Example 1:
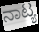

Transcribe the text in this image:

ನಾಟ್ಯ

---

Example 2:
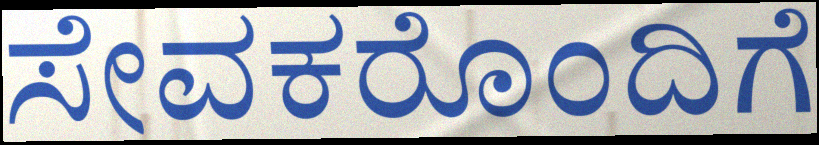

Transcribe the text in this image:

ಸೇವಕರೊಂದಿಗೆ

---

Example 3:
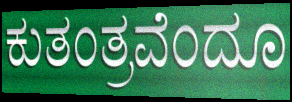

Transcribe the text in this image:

ಕುತಂತ್ರವೆಂದೂ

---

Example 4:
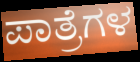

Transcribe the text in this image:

ಪಾತ್ರೆಗಳ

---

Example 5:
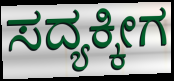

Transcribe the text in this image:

ಸದ್ಯಕ್ಕೀಗ